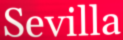
Sevilla